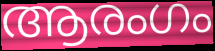
ആരംഗം